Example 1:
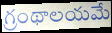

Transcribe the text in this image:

గ్రంథాలయమే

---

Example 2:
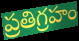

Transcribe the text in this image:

ప్రతిగ్రహం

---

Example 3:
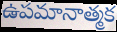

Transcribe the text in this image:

ఉపమానాత్మక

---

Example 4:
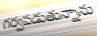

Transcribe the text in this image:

గర్వపడుతున్నాను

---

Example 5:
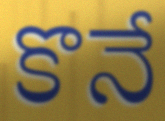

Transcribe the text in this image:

కొనే